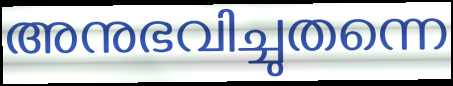
അനുഭവിച്ചുതന്നെ